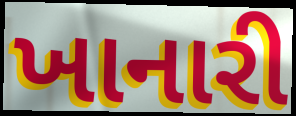
ખાનારી